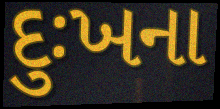
દુઃખના